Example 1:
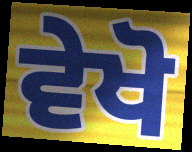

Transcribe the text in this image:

ਵੇਖੋ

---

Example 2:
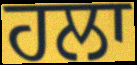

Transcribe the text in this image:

ਹਲਾ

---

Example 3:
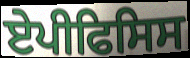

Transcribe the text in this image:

ਏਪੀਫਿਸਿਸ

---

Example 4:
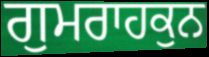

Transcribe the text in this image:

ਗੁਮਰਾਹਕੁਨ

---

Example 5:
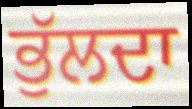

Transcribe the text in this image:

ਭੁੱਲਦਾ